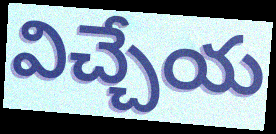
విచ్చేయ